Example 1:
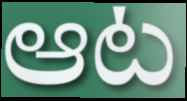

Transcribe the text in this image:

ఆట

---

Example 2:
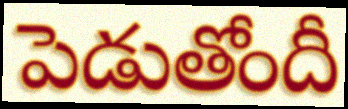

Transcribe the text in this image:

పెడుతోందీ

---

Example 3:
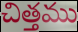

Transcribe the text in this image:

చిత్తము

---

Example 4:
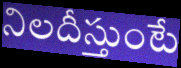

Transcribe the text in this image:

నిలదీస్తుంటే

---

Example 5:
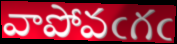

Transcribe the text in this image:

వాపోవఁగఁ